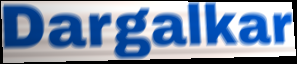
Dargalkar